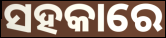
ସହକାରେ